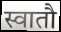
स्वातौ